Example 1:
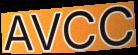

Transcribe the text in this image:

AVCC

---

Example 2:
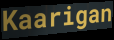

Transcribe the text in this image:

Kaarigan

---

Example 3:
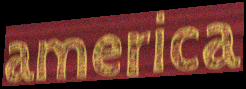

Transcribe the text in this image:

america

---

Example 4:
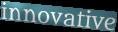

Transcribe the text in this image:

innovative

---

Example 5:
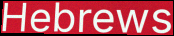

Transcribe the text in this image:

Hebrews